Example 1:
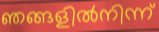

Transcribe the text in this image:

ഞങ്ങളിൽനിന്ന്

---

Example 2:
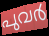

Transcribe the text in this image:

പുവർ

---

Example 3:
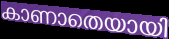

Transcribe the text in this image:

കാണാതെയായി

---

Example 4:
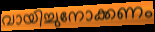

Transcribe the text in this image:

വായിച്ചുനോക്കണം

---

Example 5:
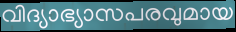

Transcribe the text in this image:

വിദ്യാഭ്യാസപരവുമായ